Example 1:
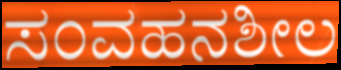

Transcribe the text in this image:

ಸಂವಹನಶೀಲ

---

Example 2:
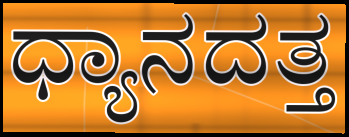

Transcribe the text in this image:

ಧ್ಯಾನದತ್ತ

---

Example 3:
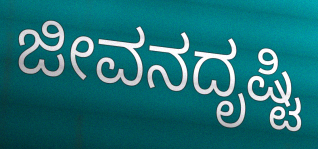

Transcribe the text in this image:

ಜೀವನದೃಷ್ಟಿ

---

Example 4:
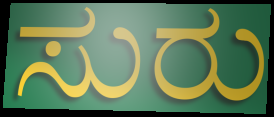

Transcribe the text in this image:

ಸುರು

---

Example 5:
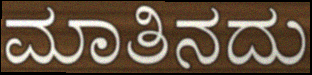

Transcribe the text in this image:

ಮಾತಿನದು